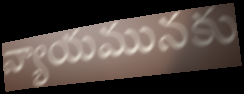
న్యాయమునకు